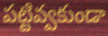
పట్టివ్వకుండా